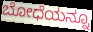
ಬೋಧೆಯನ್ನೂ